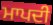
ਮਾਪਦੀ